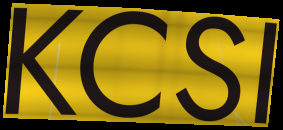
KCSI